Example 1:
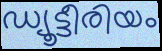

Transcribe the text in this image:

ഡ്യൂട്ടീരിയം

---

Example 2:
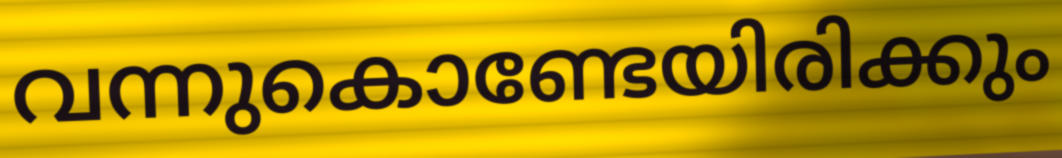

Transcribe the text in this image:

വന്നുകൊണ്ടേയിരിക്കും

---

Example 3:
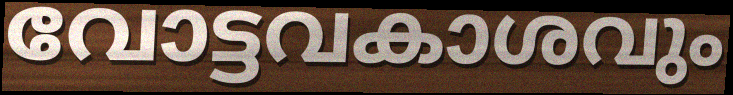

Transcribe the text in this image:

വോട്ടവകാശവും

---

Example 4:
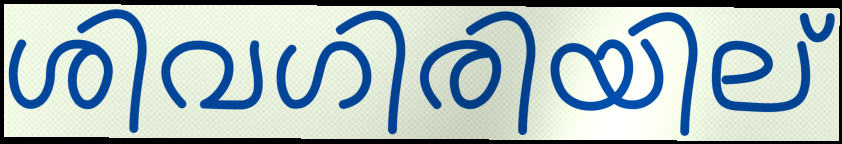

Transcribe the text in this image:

ശിവഗിരിയില്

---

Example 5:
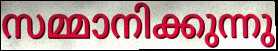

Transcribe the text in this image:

സമ്മാനിക്കുന്നു